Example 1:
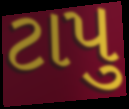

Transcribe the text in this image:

ટાપુ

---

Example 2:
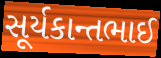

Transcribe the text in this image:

સૂર્યકાન્તભાઈ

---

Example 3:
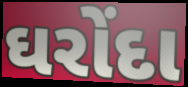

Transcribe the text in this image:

ઘરોંદા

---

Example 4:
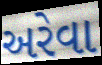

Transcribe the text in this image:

અરેવા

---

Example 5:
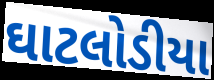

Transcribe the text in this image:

ઘાટલોડીયા